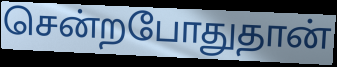
சென்றபோதுதான்